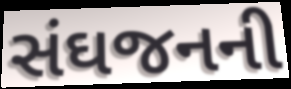
સંઘજનની